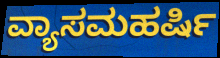
ವ್ಯಾಸಮಹರ್ಷಿ